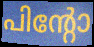
പിന്റോ